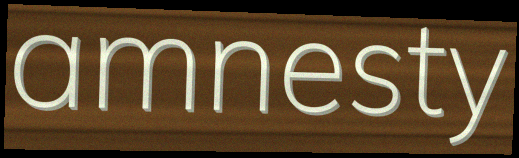
amnesty